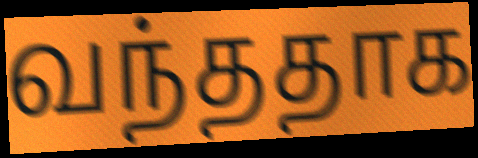
வந்ததாக